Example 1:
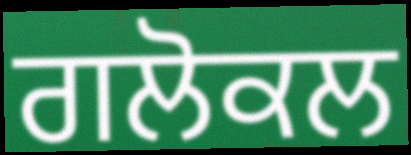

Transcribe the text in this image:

ਗਲੋਕਲ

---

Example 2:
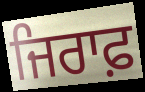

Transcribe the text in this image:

ਜਿਰਾਫ਼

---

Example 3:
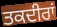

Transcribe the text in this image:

ਤਕਦੀਰਾਂ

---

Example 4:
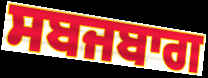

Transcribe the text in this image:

ਸਬਜਬਾਗ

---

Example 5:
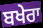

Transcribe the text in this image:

ਬਖੇਰਾ